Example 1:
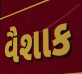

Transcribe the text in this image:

વૈશાક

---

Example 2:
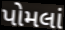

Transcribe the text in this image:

પોમલાં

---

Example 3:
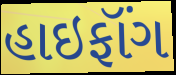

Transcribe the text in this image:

હાઇફૉંગ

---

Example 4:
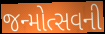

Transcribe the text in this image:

જન્મોત્સવની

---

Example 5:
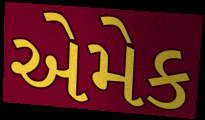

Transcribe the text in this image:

એમેક